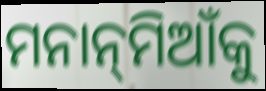
ମନାନ୍‌ମିଆଁକୁ